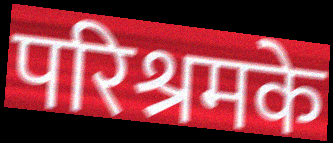
परिश्रमके